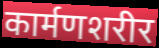
कार्मणशरीर